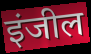
इंजील